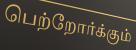
பெற்றோர்க்கும்